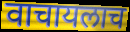
वाचायलाच